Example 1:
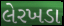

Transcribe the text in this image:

લેરખડા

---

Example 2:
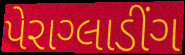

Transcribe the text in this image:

પેરાગ્લાડીંગ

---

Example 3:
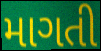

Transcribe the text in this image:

માગતી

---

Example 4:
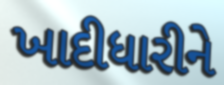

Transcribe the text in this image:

ખાદીધારીને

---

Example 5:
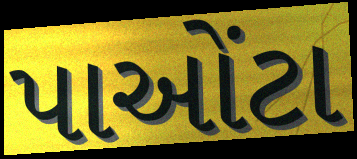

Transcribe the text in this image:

પાઓંટા